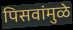
पिसवांमुळे